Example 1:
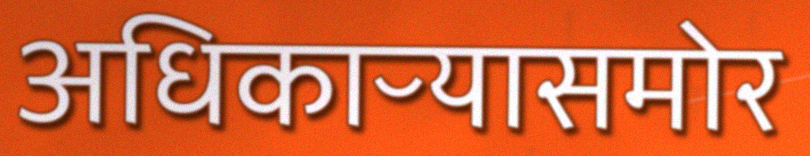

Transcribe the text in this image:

अधिकाऱ्यासमोर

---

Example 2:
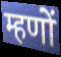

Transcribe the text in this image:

म्हणों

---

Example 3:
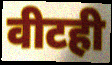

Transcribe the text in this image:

वीटही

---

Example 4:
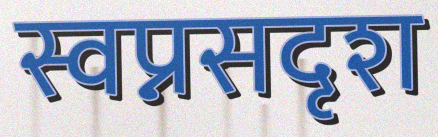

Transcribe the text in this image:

स्वप्नसदृश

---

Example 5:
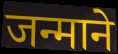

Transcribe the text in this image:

जन्माने